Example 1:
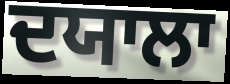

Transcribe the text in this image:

ਦਯਾਲਾ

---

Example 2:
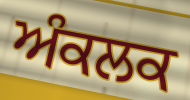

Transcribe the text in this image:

ਅੰਕਲਕ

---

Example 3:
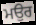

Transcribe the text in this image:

ਮਉਰ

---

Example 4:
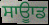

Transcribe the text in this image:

ਸਾਊਾਡ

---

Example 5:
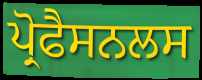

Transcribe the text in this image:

ਪ੍ਰੋਫੈਸਨਲਸ